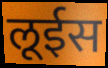
लूईस